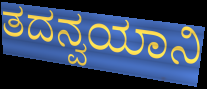
ತದನ್ವಯಾನಿ